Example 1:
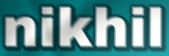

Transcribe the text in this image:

nikhil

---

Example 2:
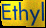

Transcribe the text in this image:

Ethyl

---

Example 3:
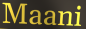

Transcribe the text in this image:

Maani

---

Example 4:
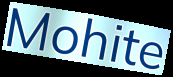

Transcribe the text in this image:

Mohite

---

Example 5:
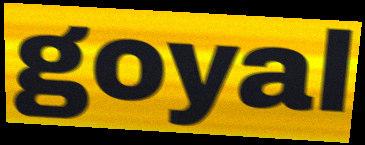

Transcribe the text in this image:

goyal